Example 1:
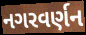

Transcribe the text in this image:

નગરવર્ણન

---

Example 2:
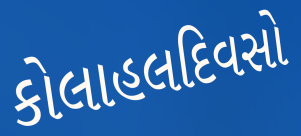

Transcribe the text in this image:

કોલાહલદિવસો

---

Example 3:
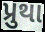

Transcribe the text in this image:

પ્રુથા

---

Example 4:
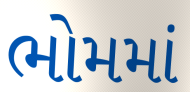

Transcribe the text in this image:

ભોમમાં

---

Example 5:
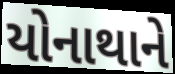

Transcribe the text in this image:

યોનાથાને